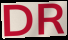
DR